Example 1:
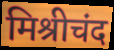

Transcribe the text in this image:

मिश्रीचंद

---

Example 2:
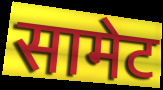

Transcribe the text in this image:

सामेट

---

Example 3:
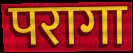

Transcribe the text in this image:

परागा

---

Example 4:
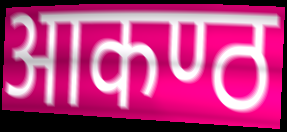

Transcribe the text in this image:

आकण्ठ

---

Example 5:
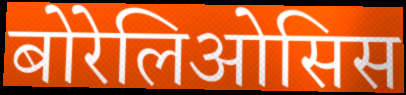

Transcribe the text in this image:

बोरेलिओसिस